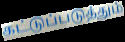
கட்டுப்படுத்தும்